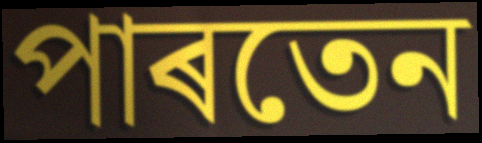
পাৰতেন